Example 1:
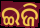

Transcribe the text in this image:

ଇଜି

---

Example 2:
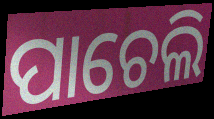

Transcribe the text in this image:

ପାଚେଲି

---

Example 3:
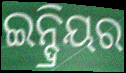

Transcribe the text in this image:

ଇନ୍ଦ୍ରିୟର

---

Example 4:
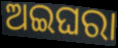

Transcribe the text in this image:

ଅଇଘରା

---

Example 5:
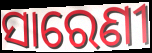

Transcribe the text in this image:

ସାରେଣୀ